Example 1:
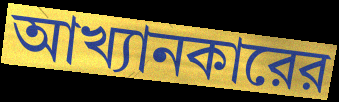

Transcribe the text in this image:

আখ্যানকারের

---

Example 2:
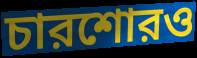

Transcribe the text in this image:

চারশোরও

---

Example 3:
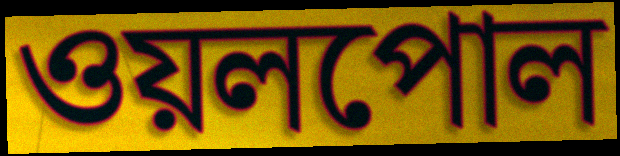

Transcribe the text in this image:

ওয়লপোল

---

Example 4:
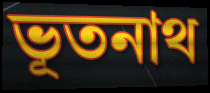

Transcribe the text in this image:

ভূতনাথ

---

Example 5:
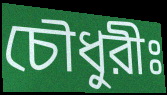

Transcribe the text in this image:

চৌধুরীঃ